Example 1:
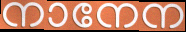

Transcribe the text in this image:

നാനേന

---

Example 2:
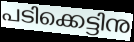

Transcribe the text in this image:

പടിക്കെട്ടിനു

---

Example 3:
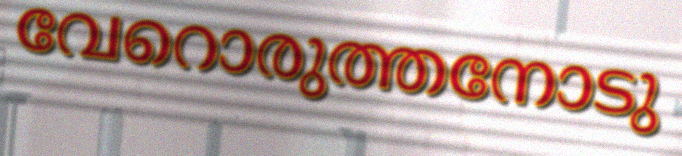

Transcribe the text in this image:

വേറൊരുത്തനോടു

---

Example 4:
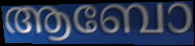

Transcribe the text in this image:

ആബോ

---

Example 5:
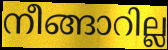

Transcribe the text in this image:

നീങ്ങാറില്ല